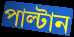
পাল্টান